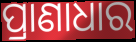
ପ୍ରାଣାଧାର